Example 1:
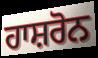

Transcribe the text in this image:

ਹਾਸ਼ਰੋਨ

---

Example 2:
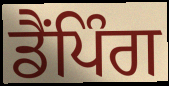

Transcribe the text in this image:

ਡੈਂਪਿੰਗ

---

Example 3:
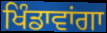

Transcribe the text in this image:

ਖਿੰਡਾਵਾਂਗਾ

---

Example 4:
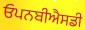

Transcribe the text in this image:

ਓਪਨਬੀਐਸਡੀ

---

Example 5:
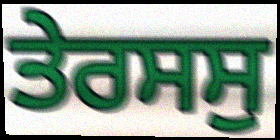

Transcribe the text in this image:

ਤੇਰਸਸੁ